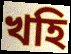
খহি